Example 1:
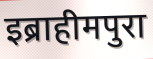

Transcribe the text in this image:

इब्राहीमपुरा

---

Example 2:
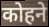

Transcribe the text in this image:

कोहने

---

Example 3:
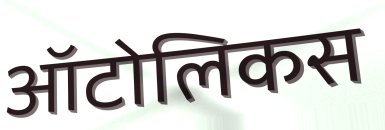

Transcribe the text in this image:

ऑटोलिकस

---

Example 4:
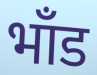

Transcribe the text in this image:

भाँड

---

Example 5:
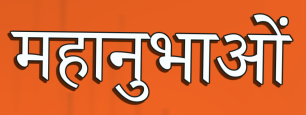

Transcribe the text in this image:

महानुभाओं